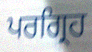
ਪਰਗ੍ਰਿਹ